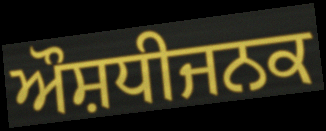
ਔਸ਼ਧੀਜਨਕ